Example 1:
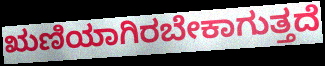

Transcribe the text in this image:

ಋಣಿಯಾಗಿರಬೇಕಾಗುತ್ತದೆ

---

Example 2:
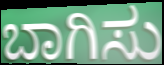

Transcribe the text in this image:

ಬಾಗಿಸು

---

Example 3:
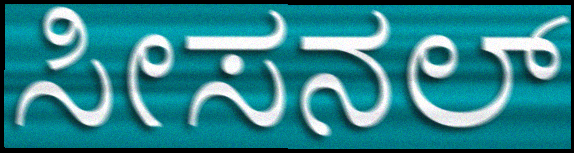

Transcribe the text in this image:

ಸೀಸನಲ್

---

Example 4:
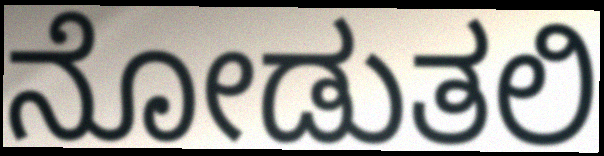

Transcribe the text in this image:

ನೋಡುತಲಿ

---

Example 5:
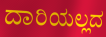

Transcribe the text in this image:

ದಾರಿಯಲ್ಲದ